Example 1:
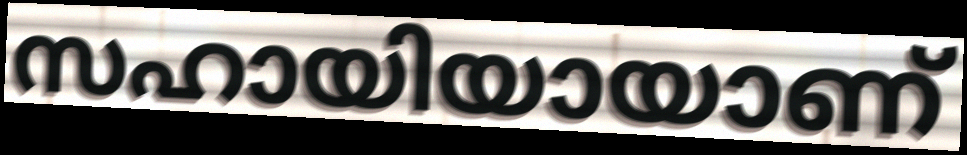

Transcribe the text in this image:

സഹായിയായാണ്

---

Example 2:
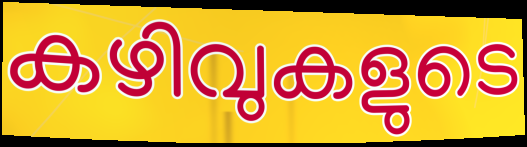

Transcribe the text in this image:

കഴിവുകളുടെ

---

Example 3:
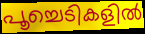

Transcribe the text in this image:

പൂച്ചെടികളിൽ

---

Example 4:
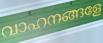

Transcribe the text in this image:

വാഹനങ്ങളേ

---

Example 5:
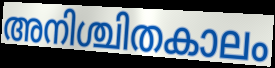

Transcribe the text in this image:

അനിശ്ചിതകാലം